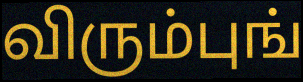
விரும்புங்